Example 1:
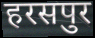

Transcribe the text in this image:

हरसपुर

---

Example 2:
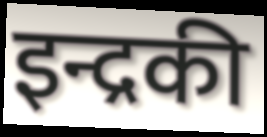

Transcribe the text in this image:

इन्द्रकी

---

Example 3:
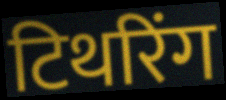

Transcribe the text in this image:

टिथरिंग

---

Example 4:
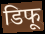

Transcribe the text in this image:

डिफू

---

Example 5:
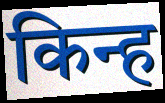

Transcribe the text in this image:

किन्ह